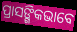
ପ୍ରାସଙ୍ଗିକଭାବେ